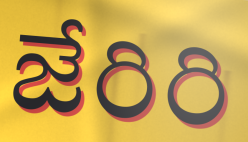
జేరిరి